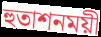
হুতাশনময়ী